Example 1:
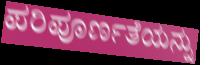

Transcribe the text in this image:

ಪರಿಪೂರ್ಣತೆಯನ್ನು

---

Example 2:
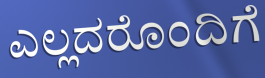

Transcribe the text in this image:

ಎಲ್ಲದರೊಂದಿಗೆ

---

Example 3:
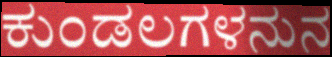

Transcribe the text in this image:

ಕುಂಡಲಗಳನುನ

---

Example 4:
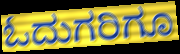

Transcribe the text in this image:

ಓದುಗರಿಗೂ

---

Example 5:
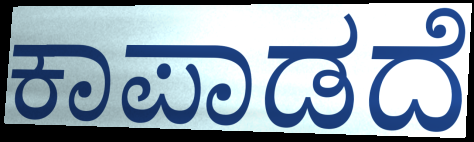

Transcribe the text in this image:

ಕಾಪಾಡದೆ